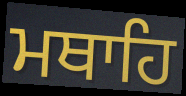
ਮਥਾਹਿ